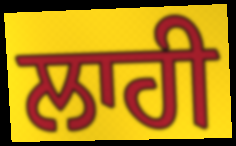
ਲਾਹੀ